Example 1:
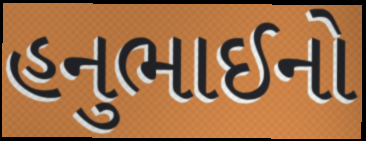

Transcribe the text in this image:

હનુભાઈનો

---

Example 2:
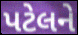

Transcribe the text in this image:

પટેલને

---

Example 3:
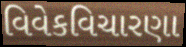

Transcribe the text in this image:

વિવેકવિચારણા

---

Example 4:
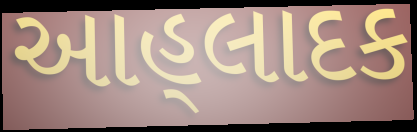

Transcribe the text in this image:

આહ્‌લાદક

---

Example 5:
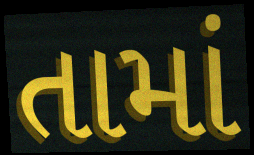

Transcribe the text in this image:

તામાં